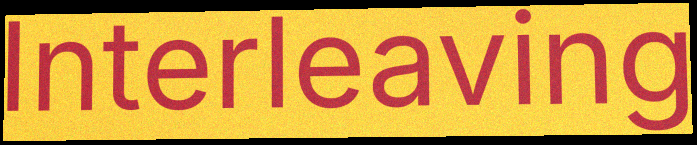
Interleaving